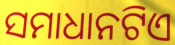
ସମାଧାନଟିଏ